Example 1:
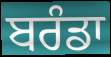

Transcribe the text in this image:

ਬਰੰਡਾ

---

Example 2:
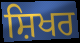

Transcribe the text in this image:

ਸ਼ਿਖਰ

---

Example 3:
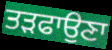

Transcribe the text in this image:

ਤੜਫਾਉਣਾ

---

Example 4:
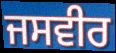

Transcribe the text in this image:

ਜਸਵੀਰ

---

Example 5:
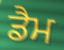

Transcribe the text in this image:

ਡੈਮ